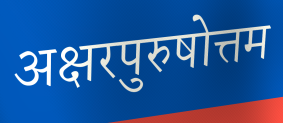
अक्षरपुरुषोत्तम